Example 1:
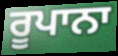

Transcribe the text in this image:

ਰੂਪਾਨਾ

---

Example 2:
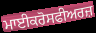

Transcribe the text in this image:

ਮਾਈਕਰੋਸਫੀਅਰਜ਼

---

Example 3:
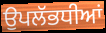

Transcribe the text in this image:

ਉਪਲੱਭਧੀਆਂ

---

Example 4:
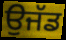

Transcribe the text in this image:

ਉਜੱਡ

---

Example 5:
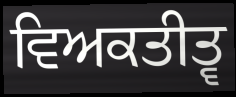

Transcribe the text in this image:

ਵਿਅਕਤੀਤ੍ਵ